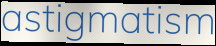
astigmatism